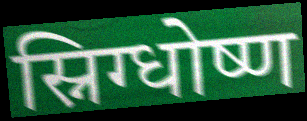
स्निग्धोष्ण